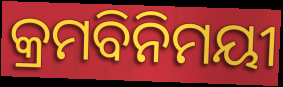
କ୍ରମବିନିମୟୀ